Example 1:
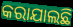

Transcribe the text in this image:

କରାଯାଲଛି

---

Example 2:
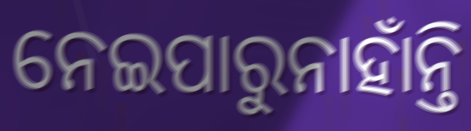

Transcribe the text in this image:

ନେଇପାରୁନାହାଁନ୍ତି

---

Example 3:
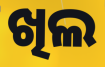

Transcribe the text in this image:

ଖିଲ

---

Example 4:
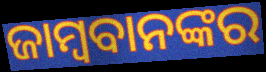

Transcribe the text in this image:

ଜାମ୍ବବାନଙ୍କର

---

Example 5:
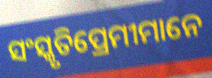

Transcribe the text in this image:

ସଂସ୍କୃତିପ୍ରେମୀମାନେ